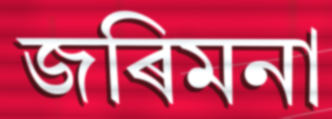
জৰিমনা